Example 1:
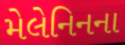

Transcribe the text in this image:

મેલેનિનના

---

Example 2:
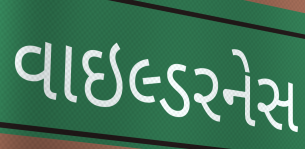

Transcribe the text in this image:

વાઇલ્ડરનેસ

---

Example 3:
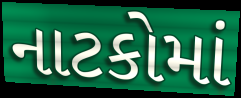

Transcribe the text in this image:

નાટકોમાં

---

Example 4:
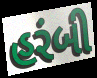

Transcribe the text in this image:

હરંબી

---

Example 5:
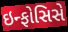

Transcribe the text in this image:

ઇન્ફોસિસે